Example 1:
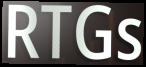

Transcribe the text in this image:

RTGs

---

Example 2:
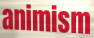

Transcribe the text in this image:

animism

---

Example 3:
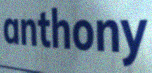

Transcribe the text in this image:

anthony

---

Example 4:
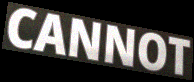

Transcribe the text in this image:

CANNOT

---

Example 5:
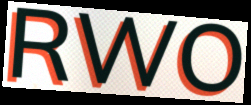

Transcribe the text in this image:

RWO